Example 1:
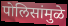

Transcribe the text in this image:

पोलिसांमुळे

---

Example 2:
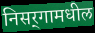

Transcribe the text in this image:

निसर्गामधील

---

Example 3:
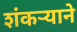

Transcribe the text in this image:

शंकर्‍याने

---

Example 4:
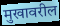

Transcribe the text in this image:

मुखावरील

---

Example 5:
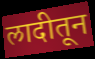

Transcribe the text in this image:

लादीतून